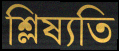
শ্লিষ্যতি